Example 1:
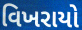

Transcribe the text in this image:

વિખરાયો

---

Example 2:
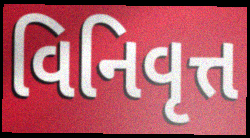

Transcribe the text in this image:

વિનિવૃત્ત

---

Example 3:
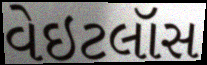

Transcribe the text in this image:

વેઇટલૉસ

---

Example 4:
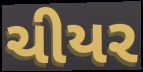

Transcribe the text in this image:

ચીયર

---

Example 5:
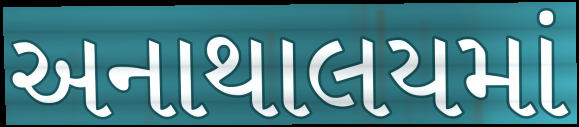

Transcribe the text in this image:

અનાથાલયમાં